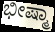
ಭೀಷ್ಮಾ